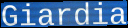
Giardia